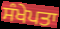
ਸੰਖੇਪਤਾ